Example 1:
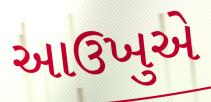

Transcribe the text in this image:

આઉખુએ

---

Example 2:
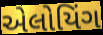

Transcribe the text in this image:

એલોયિંગ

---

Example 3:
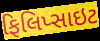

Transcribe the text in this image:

ફિલિપ્સાઇટ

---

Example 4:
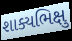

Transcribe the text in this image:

શાક્યભિક્ષુ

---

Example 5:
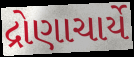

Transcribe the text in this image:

દ્રોણાચાર્યે